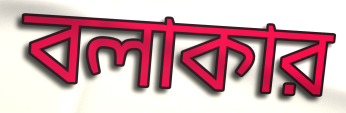
বলাকার